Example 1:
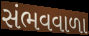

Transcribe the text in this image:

સંભવવાળા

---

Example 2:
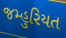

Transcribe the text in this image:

જમ્હુરિયત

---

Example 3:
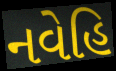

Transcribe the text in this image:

નવેહિ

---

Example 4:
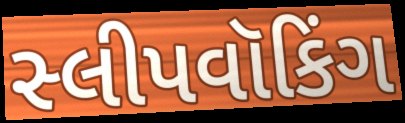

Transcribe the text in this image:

સ્લીપવૉકિંગ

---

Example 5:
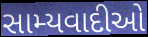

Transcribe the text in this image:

સામ્યવાદીઓ